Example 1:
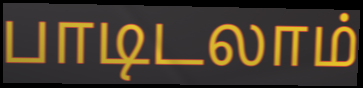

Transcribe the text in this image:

பாடிடலாம்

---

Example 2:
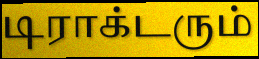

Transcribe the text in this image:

டிராக்டரும்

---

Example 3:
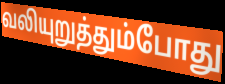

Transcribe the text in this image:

வலியுறுத்தும்போது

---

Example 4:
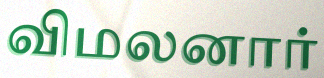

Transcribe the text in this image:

விமலனார்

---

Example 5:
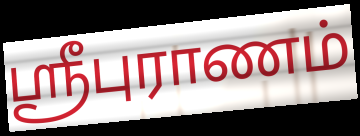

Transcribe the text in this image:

ஸ்ரீபுராணம்